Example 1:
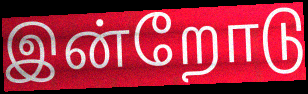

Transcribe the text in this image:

இன்றோடு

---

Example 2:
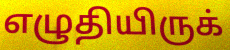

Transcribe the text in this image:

எழுதியிருக்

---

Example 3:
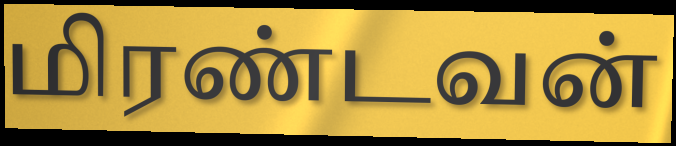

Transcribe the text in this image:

மிரண்டவன்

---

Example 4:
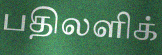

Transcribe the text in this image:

பதிலளிக்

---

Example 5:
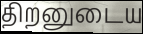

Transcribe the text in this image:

திறனுடைய